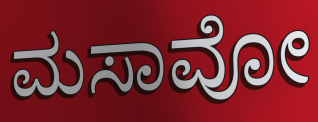
ಮಸಾವೋ